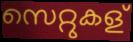
സെറ്റുകള്